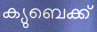
ക്യുബെക്ക്